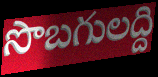
సొబగులద్ది